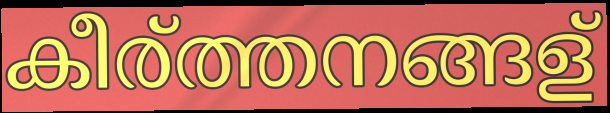
കീര്ത്തനങ്ങള്